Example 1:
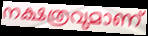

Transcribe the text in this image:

നക്ഷത്രവുമാണ്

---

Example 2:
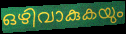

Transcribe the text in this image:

ഒഴിവാകുകയും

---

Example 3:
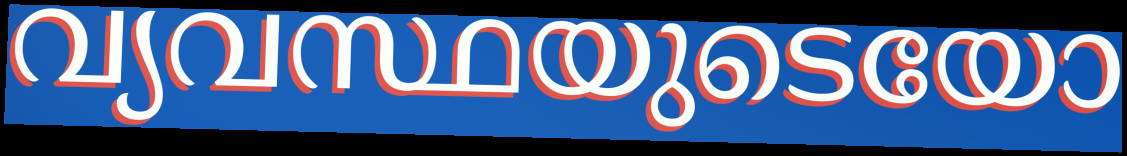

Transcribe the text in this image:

വ്യവസ്ഥയുടെയോ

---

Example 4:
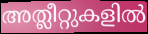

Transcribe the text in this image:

അത്ലീറ്റുകളിൽ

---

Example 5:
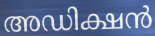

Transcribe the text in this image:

അഡിക്ഷൻ